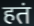
हतं